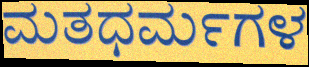
ಮತಧರ್ಮಗಳ